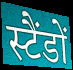
स्टैंडों